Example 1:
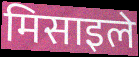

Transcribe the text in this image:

मिसाइले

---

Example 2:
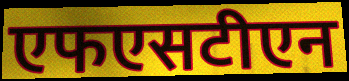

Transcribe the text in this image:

एफएसटीएन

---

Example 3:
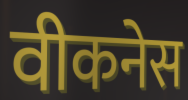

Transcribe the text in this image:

वीकनेस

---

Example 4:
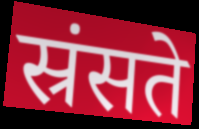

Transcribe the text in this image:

स्रंसते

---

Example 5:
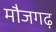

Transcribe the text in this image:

मौजगढ़